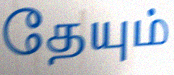
தேயும்